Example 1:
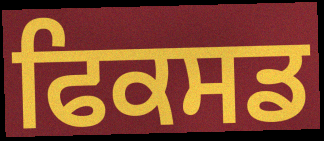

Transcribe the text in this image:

ਫਿਕਸਡ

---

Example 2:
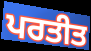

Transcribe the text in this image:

ਪਰਤੀਤ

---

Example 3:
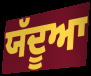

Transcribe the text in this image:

ਯੱਦੂਆ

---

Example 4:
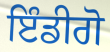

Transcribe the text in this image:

ਇੰਡੀਗੋ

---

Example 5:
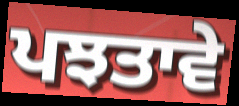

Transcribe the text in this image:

ਪਝਤਾਵੇ